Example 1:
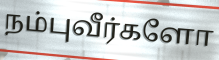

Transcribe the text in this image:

நம்புவீர்களோ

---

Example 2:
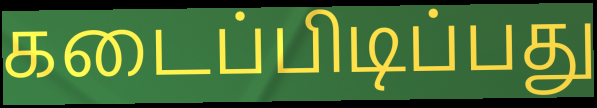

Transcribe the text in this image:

கடைப்பிடிப்பது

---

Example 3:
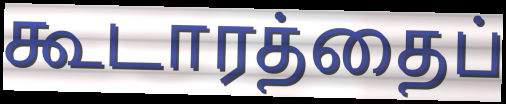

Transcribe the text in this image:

கூடாரத்தைப்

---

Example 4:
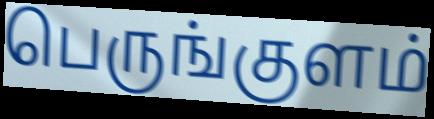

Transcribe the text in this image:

பெருங்குளம்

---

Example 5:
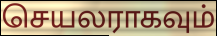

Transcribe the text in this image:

செயலராகவும்